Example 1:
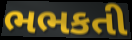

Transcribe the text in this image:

ભભકતી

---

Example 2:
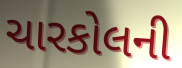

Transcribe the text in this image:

ચારકોલની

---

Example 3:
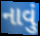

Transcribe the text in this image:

નાવું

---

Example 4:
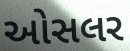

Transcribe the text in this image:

ઓસલર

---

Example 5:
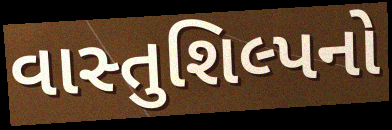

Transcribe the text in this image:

વાસ્તુશિલ્પનો